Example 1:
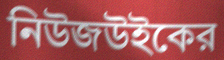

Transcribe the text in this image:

নিউজউইকের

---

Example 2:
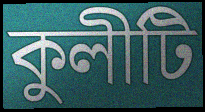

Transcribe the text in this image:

কুলীটি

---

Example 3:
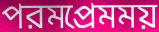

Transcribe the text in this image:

পরমপ্রেমময়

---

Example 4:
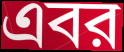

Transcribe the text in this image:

এবর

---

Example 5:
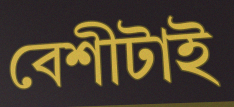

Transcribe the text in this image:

বেশীটাই